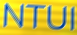
NTUI